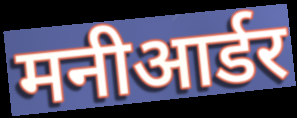
मनीआर्डर